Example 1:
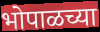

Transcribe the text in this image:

भोपाळच्या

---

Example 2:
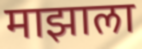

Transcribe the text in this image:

माझाला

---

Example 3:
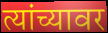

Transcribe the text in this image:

त्यांच्यावर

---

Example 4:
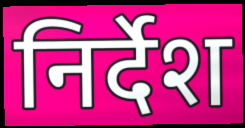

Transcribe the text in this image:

निर्देश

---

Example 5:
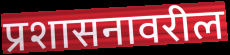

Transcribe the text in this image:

प्रशासनावरील